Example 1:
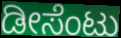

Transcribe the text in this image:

ಡೀಸೆಂಟು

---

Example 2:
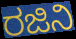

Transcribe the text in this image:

ರಜಿನಿ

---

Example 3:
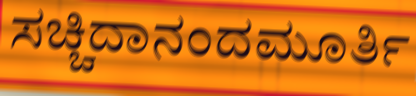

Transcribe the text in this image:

ಸಚ್ಚಿದಾನಂದಮೂರ್ತಿ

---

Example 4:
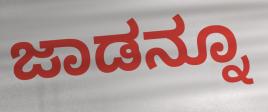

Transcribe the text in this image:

ಜಾಡನ್ನೂ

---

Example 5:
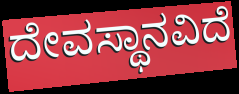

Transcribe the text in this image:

ದೇವಸ್ಥಾನವಿದೆ